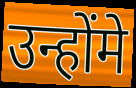
उन्होंमे